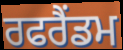
ਰਫਰੈਂਡਮ